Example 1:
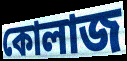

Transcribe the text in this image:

কোলাজ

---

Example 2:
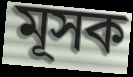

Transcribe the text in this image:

মূসক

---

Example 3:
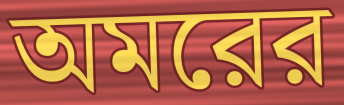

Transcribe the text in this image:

অমরের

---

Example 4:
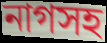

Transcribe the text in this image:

নাগসহ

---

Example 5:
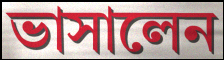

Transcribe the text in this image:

ভাসালেন